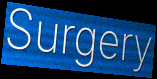
Surgery